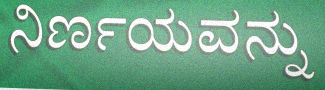
ನಿರ್ಣಯವನ್ನು